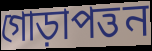
গোড়াপত্তন